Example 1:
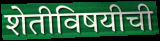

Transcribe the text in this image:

शेतीविषयीची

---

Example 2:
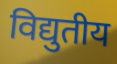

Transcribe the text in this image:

विद्युतीय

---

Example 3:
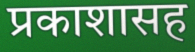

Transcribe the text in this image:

प्रकाशासह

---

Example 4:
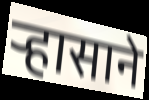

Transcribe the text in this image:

ऱ्हासाने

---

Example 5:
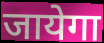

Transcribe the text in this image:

जायेगा